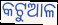
କଟୁଆଳ